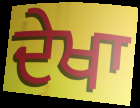
ਦੇਖਾ